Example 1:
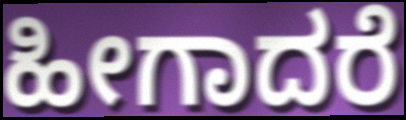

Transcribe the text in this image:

ಹೀಗಾದರೆ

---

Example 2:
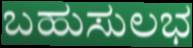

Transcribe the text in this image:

ಬಹುಸುಲಭ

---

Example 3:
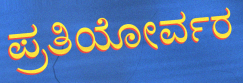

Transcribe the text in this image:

ಪ್ರತಿಯೋರ್ವರ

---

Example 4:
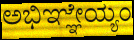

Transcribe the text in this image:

ಅಭಿಞ್ಞೇಯ್ಯಂ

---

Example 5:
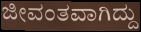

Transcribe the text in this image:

ಜೀವಂತವಾಗಿದ್ದು